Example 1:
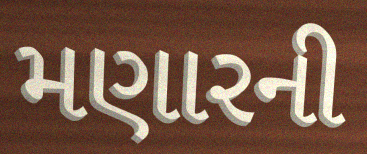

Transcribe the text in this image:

મણારની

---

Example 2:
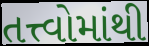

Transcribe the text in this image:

તત્ત્વોમાંથી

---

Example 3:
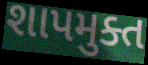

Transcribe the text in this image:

શાપમુક્ત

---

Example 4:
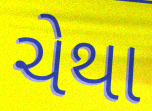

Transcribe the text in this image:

ચેથા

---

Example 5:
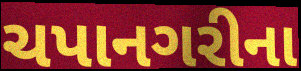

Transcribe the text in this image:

ચપાનગરીના